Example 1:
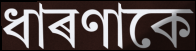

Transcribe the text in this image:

ধাৰণাকে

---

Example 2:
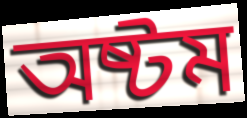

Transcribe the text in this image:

অষ্টম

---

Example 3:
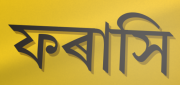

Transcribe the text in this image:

ফৰাসি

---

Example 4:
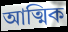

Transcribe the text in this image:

আত্মিক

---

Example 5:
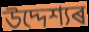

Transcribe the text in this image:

উদ্দেশ্যৰ